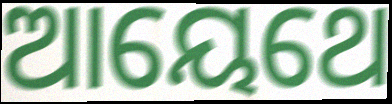
ଆୟେଥେ